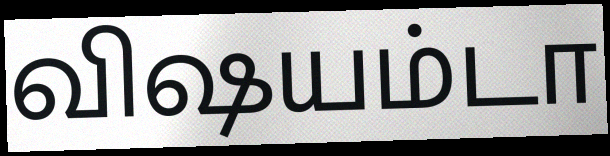
விஷயம்டா